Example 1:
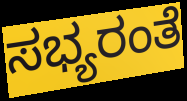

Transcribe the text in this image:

ಸಭ್ಯರಂತೆ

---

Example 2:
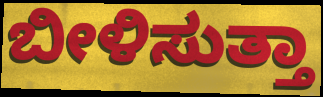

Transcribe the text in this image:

ಬೀಳಿಸುತ್ತಾ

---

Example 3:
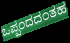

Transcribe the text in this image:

ಒಪ್ಪಂದದಂತಹ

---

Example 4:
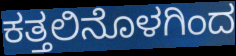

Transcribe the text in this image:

ಕತ್ತಲಿನೊಳಗಿಂದ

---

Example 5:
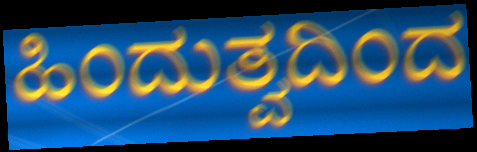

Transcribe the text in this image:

ಹಿಂದುತ್ವದಿಂದ